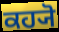
ਕਹ੍ਯੋ